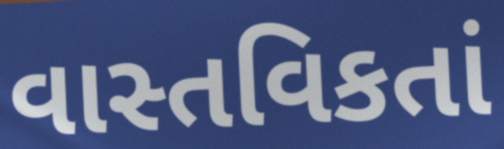
વાસ્તવિકતાં